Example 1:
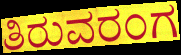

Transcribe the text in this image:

ತಿರುವರಂಗ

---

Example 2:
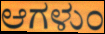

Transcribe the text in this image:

ಆಗಳುಂ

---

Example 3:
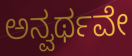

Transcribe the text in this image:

ಅನ್ವರ್ಥವೇ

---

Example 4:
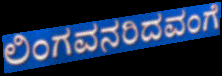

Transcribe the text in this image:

ಲಿಂಗವನರಿದವಂಗೆ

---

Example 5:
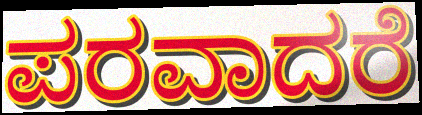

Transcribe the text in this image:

ಪರವಾದರೆ